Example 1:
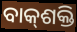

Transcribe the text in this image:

ବାକ୍‍ଶକ୍ତି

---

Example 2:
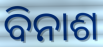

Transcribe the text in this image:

ବିନାଶ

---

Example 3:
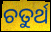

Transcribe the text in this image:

ଚତୁର୍ଥ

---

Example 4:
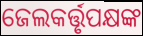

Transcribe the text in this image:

ଜେଲକର୍ତ୍ତୃପକ୍ଷଙ୍କ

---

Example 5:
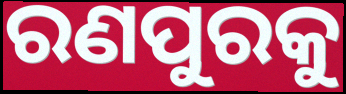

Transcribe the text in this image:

ରଣପୁରକୁ